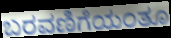
ಬರವಣಿಗೆಯಂತೂ